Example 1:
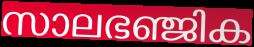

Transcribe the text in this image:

സാലഭഞ്ജിക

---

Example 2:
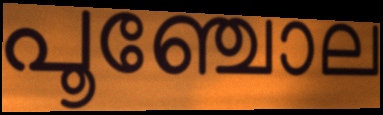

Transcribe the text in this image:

പൂഞ്ചോല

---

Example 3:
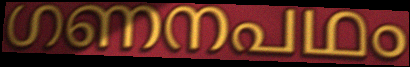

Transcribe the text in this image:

ഗണനപഥം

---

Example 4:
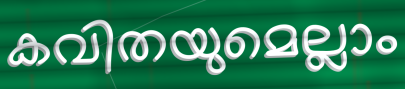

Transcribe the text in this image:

കവിതയുമെല്ലാം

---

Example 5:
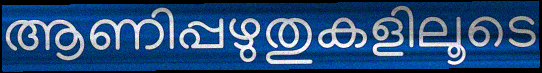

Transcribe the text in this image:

ആണിപ്പഴുതുകളിലൂടെ